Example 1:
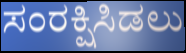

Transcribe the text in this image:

ಸಂರಕ್ಷಿಸಿಡಲು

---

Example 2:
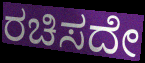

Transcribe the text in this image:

ರಚಿಸದೇ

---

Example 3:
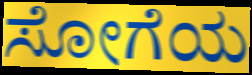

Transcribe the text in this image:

ಸೋಗೆಯ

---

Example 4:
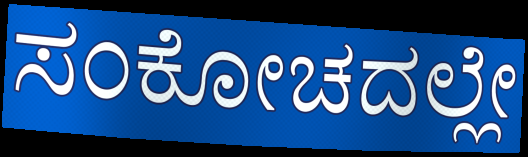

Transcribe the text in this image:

ಸಂಕೋಚದಲ್ಲೇ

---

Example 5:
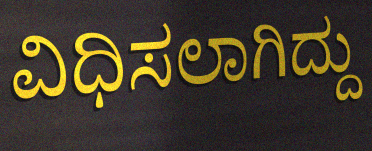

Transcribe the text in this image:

ವಿಧಿಸಲಾಗಿದ್ದು